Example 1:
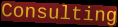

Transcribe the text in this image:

Consulting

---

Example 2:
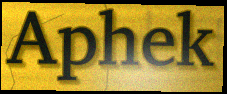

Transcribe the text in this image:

Aphek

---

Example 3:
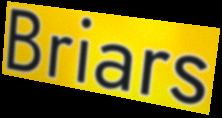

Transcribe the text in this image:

Briars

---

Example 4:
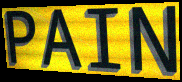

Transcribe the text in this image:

PAIN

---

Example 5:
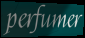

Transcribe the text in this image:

perfumer